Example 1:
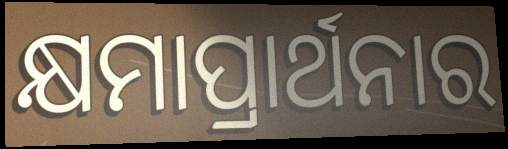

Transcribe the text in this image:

କ୍ଷମାପ୍ରାର୍ଥନାର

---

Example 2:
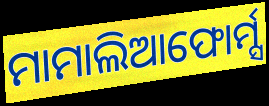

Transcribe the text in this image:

ମାମାଲିଆଫୋର୍ମ୍ସ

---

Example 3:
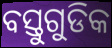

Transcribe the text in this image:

ବସ୍ତୁଗୁଡିକ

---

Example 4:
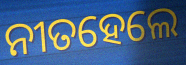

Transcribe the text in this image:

ନୀତହେଲେ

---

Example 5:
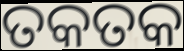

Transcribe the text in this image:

ତକତକ